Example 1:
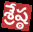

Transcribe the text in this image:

శ్రేష్ఠ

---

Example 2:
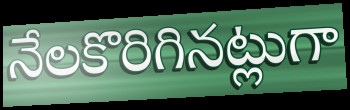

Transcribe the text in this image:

నేలకొరిగినట్లుగా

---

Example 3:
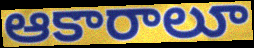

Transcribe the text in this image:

ఆకారాలూ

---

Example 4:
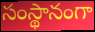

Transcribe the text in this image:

సంస్థానంగా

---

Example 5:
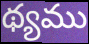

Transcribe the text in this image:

థ్యము